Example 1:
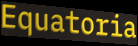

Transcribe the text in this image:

Equatoria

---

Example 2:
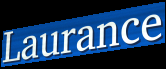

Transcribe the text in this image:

Laurance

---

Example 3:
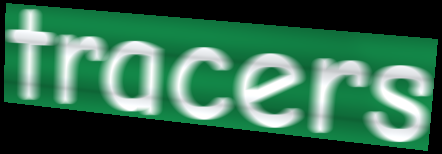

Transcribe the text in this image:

tracers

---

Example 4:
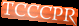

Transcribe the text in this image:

TCCCPR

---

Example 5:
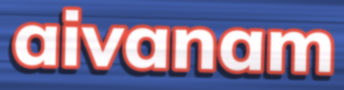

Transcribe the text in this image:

aivanam